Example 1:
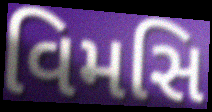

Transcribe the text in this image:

વિમસિ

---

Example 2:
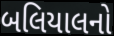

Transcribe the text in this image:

બલિયાલનો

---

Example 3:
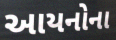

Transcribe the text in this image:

આયનોના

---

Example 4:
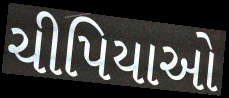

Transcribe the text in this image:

ચીપિયાઓ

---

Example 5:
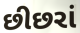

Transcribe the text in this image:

છીછરાં